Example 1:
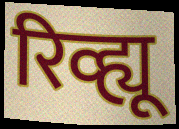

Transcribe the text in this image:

रिव्ह्यू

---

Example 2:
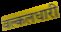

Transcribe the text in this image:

वल्कलधारी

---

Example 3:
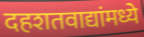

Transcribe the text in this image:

दहशतवाद्यांमध्ये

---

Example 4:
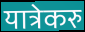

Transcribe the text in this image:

यात्रेकरु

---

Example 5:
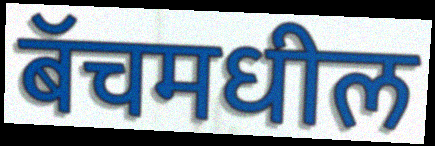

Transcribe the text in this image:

बॅचमधील